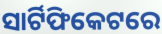
ସାର୍ଟିଫିକେଟରେ